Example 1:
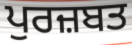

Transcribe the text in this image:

ਪੁਰਜ਼ਬਤ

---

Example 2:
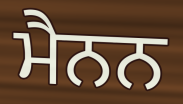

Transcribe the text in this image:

ਮੈਨਨ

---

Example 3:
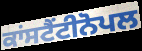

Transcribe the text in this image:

ਕਾਂਸਟੈਂਟੀਨੋਪਲ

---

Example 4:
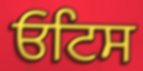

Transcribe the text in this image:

ਓਟਿਸ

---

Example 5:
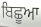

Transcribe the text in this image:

ਬਿਛੂਆ